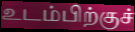
உடம்பிற்குச்